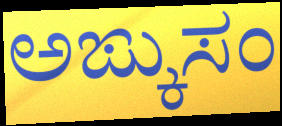
ಅಙ್ಕುಸಂ